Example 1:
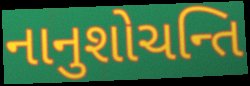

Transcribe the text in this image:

નાનુશોચન્તિ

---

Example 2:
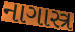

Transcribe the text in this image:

નાગાસ્ત્ર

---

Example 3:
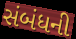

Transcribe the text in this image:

સંબંધની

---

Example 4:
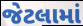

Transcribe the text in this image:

જેટલામાં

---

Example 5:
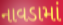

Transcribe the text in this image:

નાવડામાં